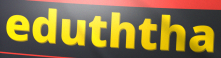
eduththa